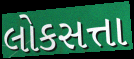
લોકસત્તા